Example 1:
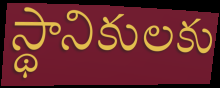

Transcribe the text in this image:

స్థానికులకు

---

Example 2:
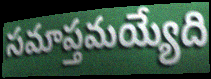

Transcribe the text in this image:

సమాప్తమయ్యేది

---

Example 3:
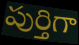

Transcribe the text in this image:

పుర్తిగా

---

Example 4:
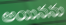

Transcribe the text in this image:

అయినను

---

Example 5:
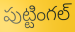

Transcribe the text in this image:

పుట్టింగల్